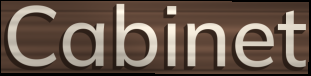
Cabinet